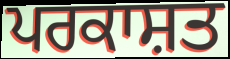
ਪਰਕਾਸ਼ਤ